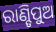
ରାଣ୍ଡିପୁଅ